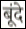
बूंदे